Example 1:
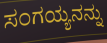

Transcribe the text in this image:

ಸಂಗಯ್ಯನನ್ನು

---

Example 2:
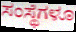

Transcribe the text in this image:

ಸಂಸ್ಥೆಗಳೂ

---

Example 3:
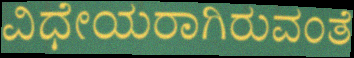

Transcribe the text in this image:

ವಿಧೇಯರಾಗಿರುವಂತೆ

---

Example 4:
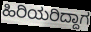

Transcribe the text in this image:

ಹಿರಿಯರಿದ್ದಾಗ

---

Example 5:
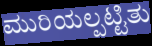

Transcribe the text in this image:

ಮುರಿಯಲ್ಪಟ್ಟಿತು